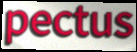
pectus